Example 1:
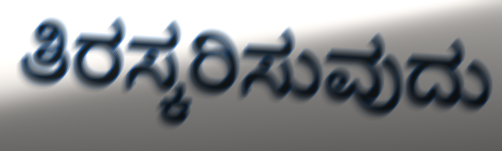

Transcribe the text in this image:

ತಿರಸ್ಕರಿಸುವುದು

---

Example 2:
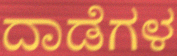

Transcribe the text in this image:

ದಾಡೆಗಳ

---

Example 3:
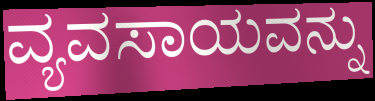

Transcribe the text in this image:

ವ್ಯವಸಾಯವನ್ನು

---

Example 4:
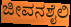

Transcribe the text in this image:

ಜೀವನಶೈಲಿ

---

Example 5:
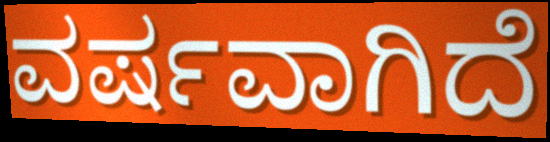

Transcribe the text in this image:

ವರ್ಷವಾಗಿದೆ